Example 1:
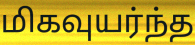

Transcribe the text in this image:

மிகவுயர்ந்த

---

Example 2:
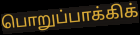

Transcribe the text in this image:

பொறுப்பாக்கிக்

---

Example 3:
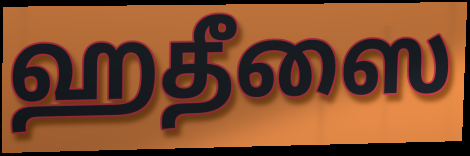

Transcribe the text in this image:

ஹதீஸை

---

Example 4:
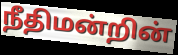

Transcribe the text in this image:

நீதிமன்றின்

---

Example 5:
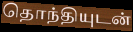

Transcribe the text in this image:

தொந்தியுடன்